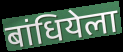
बांधियेला